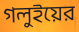
গলুইয়ের